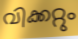
വിക്കറ്റും